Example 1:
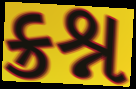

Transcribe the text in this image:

ક્રશ્ન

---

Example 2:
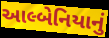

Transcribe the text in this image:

આલ્બેનિયાનું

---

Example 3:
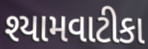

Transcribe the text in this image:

શ્યામવાટીકા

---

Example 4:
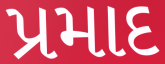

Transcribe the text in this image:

પ્રમાદ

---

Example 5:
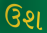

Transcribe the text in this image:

ઉશ